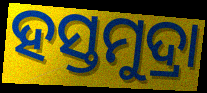
ହସ୍ତମୁଦ୍ରା